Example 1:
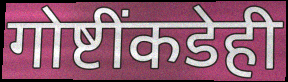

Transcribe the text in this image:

गोष्टींकडेही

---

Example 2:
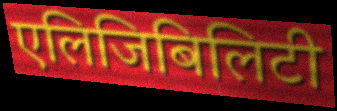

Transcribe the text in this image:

एलिजिबिलिटी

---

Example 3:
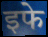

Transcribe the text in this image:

इफे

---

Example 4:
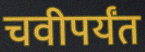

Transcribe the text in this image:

चवीपर्यंत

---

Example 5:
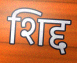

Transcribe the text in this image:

शिद्द